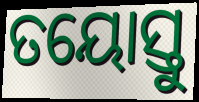
ତୟୋସ୍ତୁ